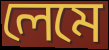
লেমে